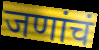
जणांचं